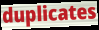
duplicates